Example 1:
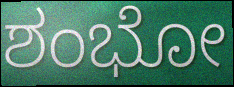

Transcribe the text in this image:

ಶಂಭೋ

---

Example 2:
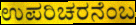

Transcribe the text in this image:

ಉಪರಿಚರನೆಂಬ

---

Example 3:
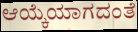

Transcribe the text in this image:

ಆಯ್ಕೆಯಾಗದಂತೆ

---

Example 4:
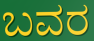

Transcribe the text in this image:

ಬವರ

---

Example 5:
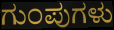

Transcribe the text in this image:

ಗುಂಪುಗಳು